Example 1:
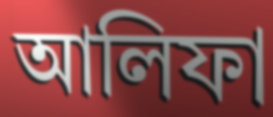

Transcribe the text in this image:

আলিফা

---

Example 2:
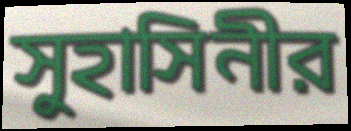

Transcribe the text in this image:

সুহাসিনীর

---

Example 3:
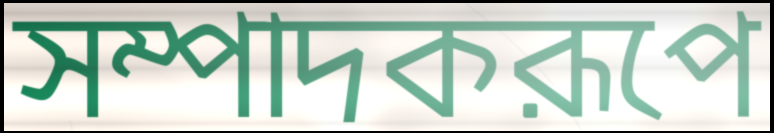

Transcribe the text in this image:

সম্পাদকরূপে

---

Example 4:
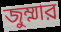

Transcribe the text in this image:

জুম্মার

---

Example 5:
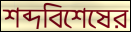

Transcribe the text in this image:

শব্দবিশেষের